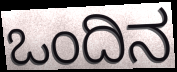
ಒಂದಿನ